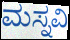
ಮಸ್ನವಿ